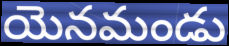
యెనమండు